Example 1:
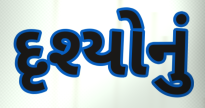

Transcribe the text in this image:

દૃશ્યોનું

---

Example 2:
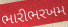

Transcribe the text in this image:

ભારીભરખમ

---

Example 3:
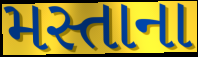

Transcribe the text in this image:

મસ્તાના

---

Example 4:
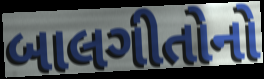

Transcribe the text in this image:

બાલગીતોનો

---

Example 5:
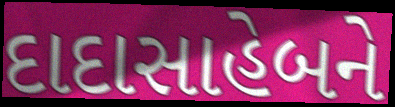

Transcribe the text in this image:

દાદાસાહેબને